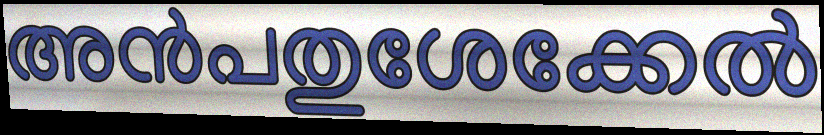
അൻപതുശേക്കേൽ